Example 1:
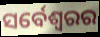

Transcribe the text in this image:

ସର୍ବେଶ୍ୱରର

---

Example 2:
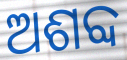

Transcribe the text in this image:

ଅଶବ୍ଦ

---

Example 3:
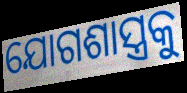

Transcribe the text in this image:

ଯୋଗଶାସ୍ତ୍ରକୁ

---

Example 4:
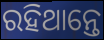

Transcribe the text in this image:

ରହିଥାନ୍ତେ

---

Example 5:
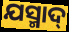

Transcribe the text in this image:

ଯସ୍ମାଦ୍